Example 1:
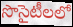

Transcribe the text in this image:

సొసైటీలలో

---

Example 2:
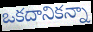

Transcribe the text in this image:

ఒకదానికన్నా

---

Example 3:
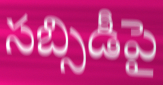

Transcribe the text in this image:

సబ్సిడీపై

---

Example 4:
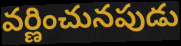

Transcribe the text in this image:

వర్ణించునపుడు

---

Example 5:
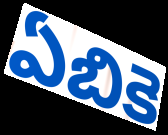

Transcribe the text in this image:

ఏబికె